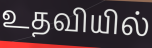
உதவியில்